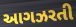
આગઝરતી